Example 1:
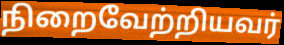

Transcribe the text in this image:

நிறைவேற்றியவர்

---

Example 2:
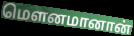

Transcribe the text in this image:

மௌனமானான்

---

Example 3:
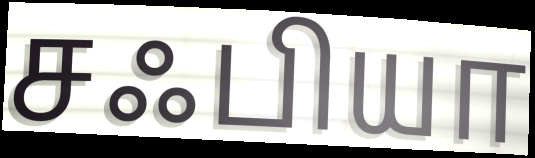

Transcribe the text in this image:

சஃபியா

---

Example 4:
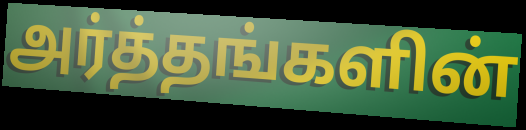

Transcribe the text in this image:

அர்த்தங்களின்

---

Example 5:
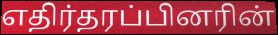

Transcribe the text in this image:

எதிர்தரப்பினரின்